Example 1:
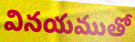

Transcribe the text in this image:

వినయముతో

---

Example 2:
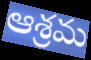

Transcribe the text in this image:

ఆశ్రమ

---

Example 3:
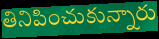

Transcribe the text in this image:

తినిపించుకున్నారు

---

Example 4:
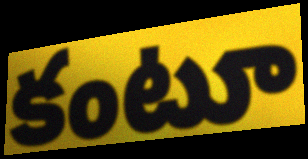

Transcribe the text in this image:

కంటూ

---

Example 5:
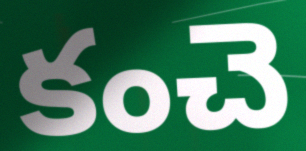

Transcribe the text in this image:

కంచె